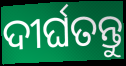
ଦୀର୍ଘତନ୍ତୁ